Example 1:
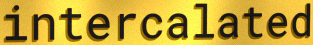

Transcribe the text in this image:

intercalated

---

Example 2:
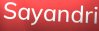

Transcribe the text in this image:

Sayandri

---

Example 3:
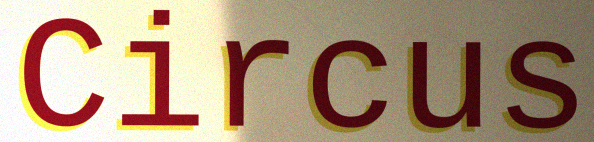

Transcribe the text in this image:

Circus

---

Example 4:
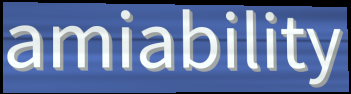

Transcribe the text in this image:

amiability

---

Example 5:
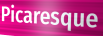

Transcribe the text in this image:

Picaresque